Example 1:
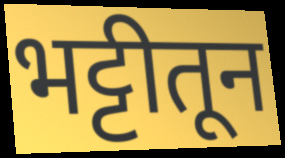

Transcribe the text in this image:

भट्टीतून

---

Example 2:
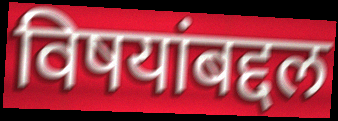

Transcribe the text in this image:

विषयांबद्दल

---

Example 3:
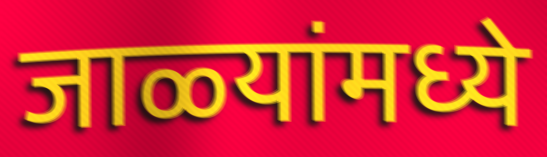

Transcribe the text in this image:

जाळ्यांमध्ये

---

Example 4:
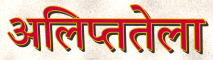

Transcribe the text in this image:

अलिप्ततेला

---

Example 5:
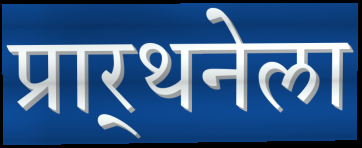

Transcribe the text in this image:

प्रार्थनेला